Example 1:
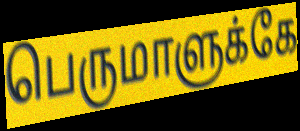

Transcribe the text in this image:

பெருமாளுக்கே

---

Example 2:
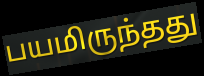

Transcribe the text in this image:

பயமிருந்தது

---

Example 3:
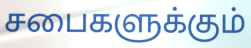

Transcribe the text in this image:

சபைகளுக்கும்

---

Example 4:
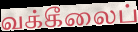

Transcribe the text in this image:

வக்கீலைப்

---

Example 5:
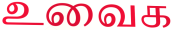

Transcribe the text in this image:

உவைக